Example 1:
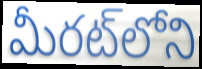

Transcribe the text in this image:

మీరట్‌లోని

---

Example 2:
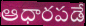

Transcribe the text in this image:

ఆధారపడే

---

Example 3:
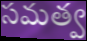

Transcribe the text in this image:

సమత్వ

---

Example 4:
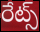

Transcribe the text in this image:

రేట్స్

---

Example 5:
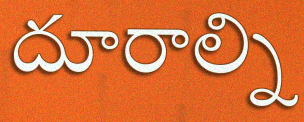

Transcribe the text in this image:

దూరాల్ని